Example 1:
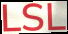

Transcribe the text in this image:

LSL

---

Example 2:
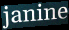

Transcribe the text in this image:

janine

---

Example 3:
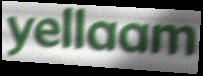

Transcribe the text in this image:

yellaam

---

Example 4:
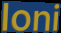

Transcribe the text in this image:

loni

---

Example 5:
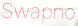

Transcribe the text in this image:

Swapno